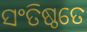
ସଂତିଷ୍ଠତେ